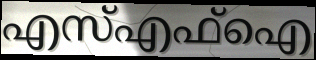
എസ്എഫ്ഐ